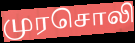
முரசொலி